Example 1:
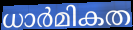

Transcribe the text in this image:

ധാർമികത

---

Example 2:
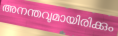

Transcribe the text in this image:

അനന്തവുമായിരിക്കും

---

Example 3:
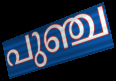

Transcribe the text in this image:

പുഞ്ച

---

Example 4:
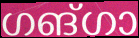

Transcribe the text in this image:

ഗങ്ഗാ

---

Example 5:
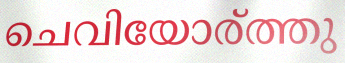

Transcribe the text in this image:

ചെവിയോര്ത്തു